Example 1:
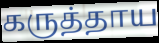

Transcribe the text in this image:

கருத்தாய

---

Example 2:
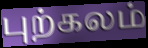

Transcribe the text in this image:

புற்கலம்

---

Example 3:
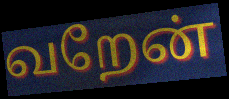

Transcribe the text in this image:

வறேன்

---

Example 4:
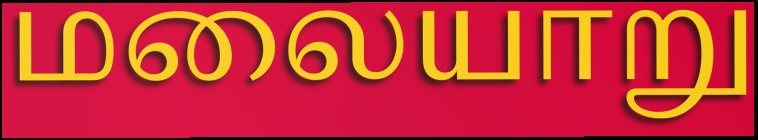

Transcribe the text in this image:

மலையாறு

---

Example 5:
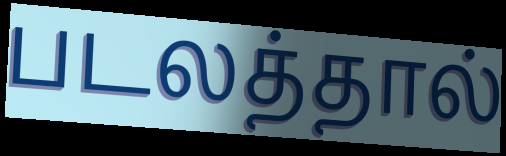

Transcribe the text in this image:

படலத்தால்